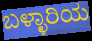
ಬಳ್ಳಾರಿಯ